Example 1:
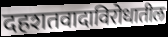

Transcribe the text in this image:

दहशतवादाविरोधातील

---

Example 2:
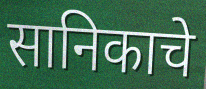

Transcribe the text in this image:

सानिकाचे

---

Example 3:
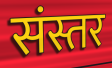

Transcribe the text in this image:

संस्तर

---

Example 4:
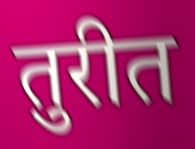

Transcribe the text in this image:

तुरीत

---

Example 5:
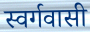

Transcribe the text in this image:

स्वर्गवासी